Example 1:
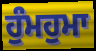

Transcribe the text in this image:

ਹੁੰਮਹੁਮਾ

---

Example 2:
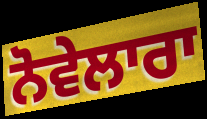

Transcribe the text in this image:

ਨੋਵੇਲਾਰਾ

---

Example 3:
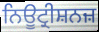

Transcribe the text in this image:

ਨਿਊਟ੍ਰੀਸ਼ਨਜ਼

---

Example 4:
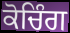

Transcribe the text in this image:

ਕੋਚਿੰਗ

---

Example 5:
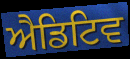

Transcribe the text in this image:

ਐਡਿਟਿਵ